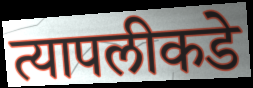
त्यापलीकडे